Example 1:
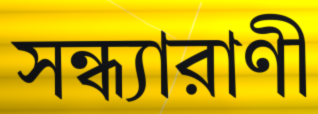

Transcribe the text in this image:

সন্ধ্যারাণী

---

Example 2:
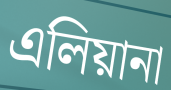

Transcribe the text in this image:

এলিয়ানা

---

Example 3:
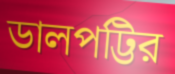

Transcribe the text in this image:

ডালপট্টির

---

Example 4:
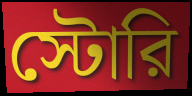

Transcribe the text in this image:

স্টোরি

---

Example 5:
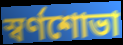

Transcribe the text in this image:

স্বর্ণশোভা